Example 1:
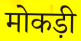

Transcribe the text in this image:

मोकड़ी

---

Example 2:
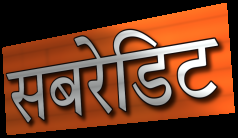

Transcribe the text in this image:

सबरेडिट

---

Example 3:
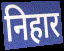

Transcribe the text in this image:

निहार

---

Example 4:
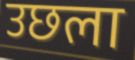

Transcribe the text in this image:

उछला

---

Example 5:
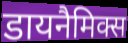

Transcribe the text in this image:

डायनैमिक्स